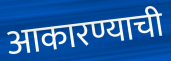
आकारण्याची